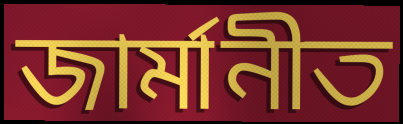
জাৰ্মানীত